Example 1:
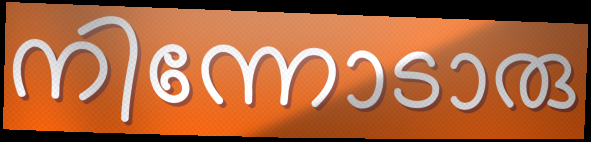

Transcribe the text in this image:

നിന്നോടാരു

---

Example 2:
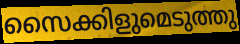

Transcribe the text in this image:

സൈക്കിളുമെടുത്തു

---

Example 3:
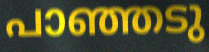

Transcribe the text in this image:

പാഞ്ഞടു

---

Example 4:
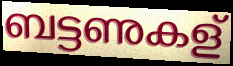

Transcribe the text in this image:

ബട്ടണുകള്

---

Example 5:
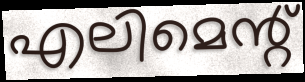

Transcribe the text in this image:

എലിമെന്റ്